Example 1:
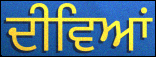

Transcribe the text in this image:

ਦੀਵਿਆਂ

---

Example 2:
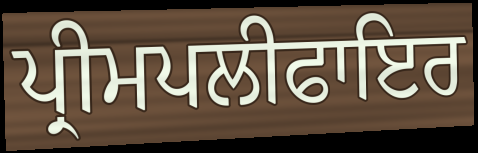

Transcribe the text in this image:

ਪ੍ਰੀਮਪਲੀਫਾਇਰ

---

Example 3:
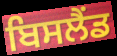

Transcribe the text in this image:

ਬਿਸਲੈਂਡ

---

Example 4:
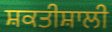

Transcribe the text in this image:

ਸ਼ਕਤੀਸ਼ਾਲੀ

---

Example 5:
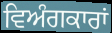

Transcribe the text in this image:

ਵਿਅੰਗਕਾਰਾਂ